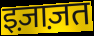
इज़ाज़त